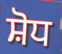
ਸ਼ੋਧ